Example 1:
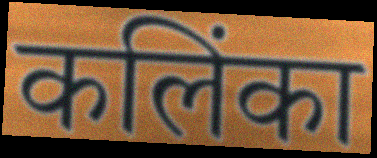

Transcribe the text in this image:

कलिंका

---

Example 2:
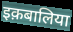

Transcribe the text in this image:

इक़बालिया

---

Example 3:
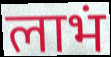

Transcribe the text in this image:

लाभं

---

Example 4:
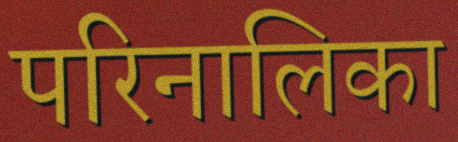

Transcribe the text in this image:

परिनालिका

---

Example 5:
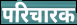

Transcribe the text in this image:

परिचारक